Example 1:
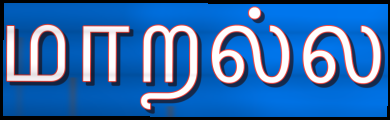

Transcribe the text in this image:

மாறல்ல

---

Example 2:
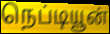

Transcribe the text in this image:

நெப்டியூன்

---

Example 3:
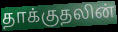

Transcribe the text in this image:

தாக்குதலின்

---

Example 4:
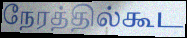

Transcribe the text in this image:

நேரத்தில்கூட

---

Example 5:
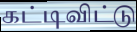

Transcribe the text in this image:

கட்டிவிட்டு